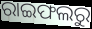
ରାଇଫଲରୁ